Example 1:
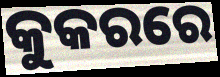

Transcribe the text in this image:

କୁକରରେ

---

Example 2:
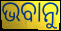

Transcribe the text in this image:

ଭବାନୁ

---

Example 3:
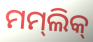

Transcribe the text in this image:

ମମ୍‌ଲିକ୍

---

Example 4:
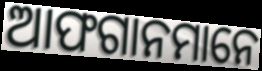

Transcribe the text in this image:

ଆଫଗାନମାନେ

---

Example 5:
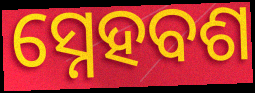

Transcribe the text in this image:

ସ୍ନେହବଶ